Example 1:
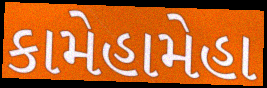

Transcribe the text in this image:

કામેહામેહા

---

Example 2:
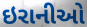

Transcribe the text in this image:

ઇરાનીઓ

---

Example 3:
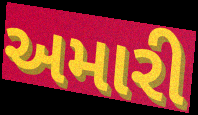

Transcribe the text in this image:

અમારી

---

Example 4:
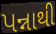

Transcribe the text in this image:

પન્નાથી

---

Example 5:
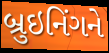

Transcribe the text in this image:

બ્રુઇનિંગને